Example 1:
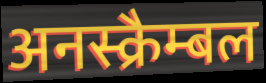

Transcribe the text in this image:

अनस्क्रैम्बल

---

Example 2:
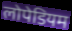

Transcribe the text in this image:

लोपेडियम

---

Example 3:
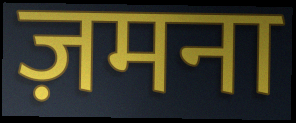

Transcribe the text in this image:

ज़मना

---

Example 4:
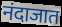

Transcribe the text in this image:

नंदाजात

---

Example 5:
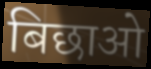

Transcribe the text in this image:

बिछाओ